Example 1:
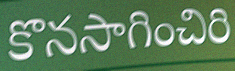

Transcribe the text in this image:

కొనసాగించిరి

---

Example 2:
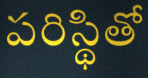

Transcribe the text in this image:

పరిస్థితో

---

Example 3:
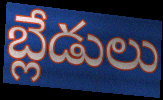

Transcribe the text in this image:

బ్లేడులు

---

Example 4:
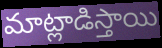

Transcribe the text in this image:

మాట్లాడిస్తాయి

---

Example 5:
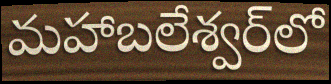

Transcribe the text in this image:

మహాబలేశ్వర్‌లో